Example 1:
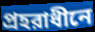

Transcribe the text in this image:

প্রহরাধীনে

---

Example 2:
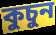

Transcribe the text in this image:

কুচুন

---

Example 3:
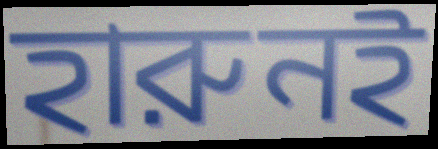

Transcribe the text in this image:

হারুনই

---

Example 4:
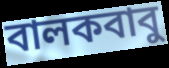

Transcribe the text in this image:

বালকবাবু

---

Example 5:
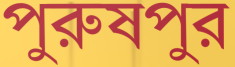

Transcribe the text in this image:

পুরুষপুর